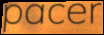
pacer